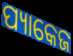
ପ୍ୟାକେଜ